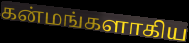
கன்மங்களாகிய